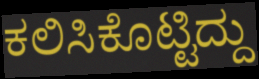
ಕಲಿಸಿಕೊಟ್ಟಿದ್ದು